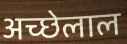
अच्छेलाल